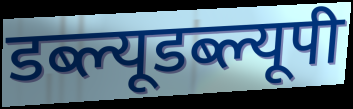
डब्ल्यूडब्ल्यूपी